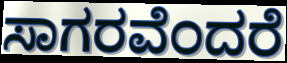
ಸಾಗರವೆಂದರೆ